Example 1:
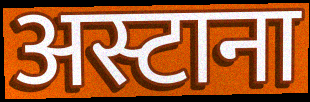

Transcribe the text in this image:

अस्टाना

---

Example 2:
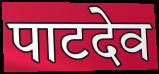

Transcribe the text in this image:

पाटदेव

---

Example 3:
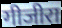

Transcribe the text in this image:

गीजीरा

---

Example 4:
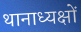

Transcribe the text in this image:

थानाध्यक्षों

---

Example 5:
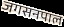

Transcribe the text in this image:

जगसनपाल